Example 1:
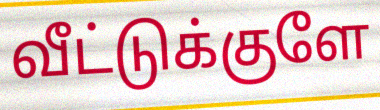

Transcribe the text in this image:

வீட்டுக்குளே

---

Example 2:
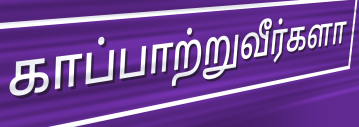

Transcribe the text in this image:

காப்பாற்றுவீர்களா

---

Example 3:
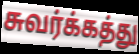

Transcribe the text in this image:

சுவர்க்கத்து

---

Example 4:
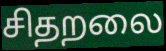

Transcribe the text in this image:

சிதறலை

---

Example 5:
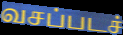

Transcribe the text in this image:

வசப்படச்